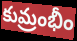
కుమ్రంభీం